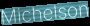
Michelson